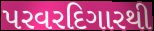
પરવરદિગારથી